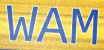
WAM